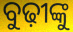
ବୁଢ଼ୀଙ୍କୁ